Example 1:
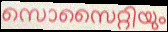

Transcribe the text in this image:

സൊസൈറ്റിയും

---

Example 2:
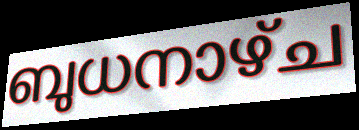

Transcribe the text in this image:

ബുധനാഴ്‌ച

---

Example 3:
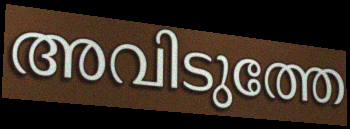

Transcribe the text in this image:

അവിടുത്തേ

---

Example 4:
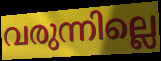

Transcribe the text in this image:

വരുന്നില്ലെ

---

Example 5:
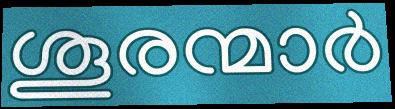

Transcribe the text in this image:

ശൂരന്മാർ